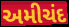
અમીચંદ